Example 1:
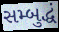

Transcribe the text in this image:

સમ્બુદ્ધં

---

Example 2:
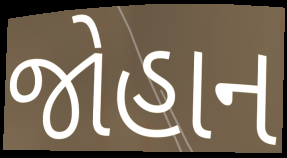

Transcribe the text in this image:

જોહાન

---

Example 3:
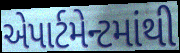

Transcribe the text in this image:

એપાર્ટમેન્ટમાંથી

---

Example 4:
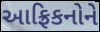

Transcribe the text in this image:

આફ્રિકનોને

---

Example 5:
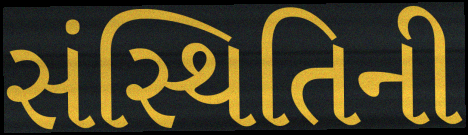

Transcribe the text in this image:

સંસ્થિતિની